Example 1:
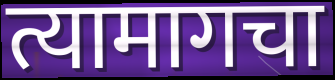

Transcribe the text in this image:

त्यामागचा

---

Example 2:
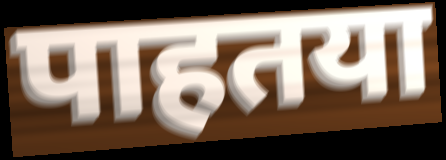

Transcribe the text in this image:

पाहतया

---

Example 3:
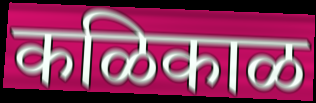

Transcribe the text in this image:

कळिकाळ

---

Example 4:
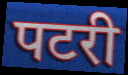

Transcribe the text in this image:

पटरी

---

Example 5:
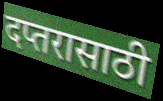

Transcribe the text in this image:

दप्तरासाठी